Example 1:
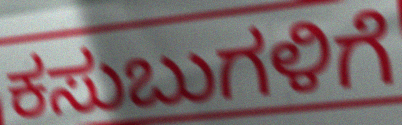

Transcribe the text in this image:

ಕಸುಬುಗಳಿಗೆ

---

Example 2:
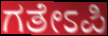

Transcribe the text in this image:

ಗತೇಽಪಿ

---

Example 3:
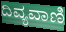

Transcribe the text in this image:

ದಿವ್ಯವಾಣಿ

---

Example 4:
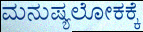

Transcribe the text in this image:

ಮನುಷ್ಯಲೋಕಕ್ಕೆ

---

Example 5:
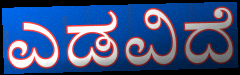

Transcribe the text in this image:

ಎಡವಿದೆ